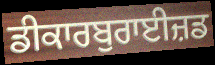
ਡੀਕਾਰਬੁਰਾਈਜ਼ਡ